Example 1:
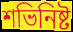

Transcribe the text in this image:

শভিনিষ্ট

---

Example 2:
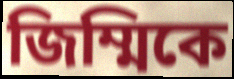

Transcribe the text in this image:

জিম্মিকে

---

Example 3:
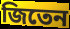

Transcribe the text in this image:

জিতেন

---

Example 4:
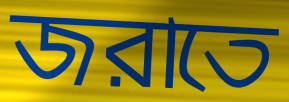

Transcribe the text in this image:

জরাতে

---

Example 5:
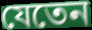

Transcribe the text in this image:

যেতেন